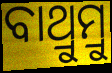
ବାଥ୍ରୁମ୍ରୁ